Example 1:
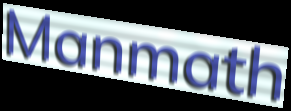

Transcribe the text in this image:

Manmath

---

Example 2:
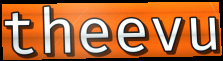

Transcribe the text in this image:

theevu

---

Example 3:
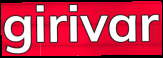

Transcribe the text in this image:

girivar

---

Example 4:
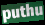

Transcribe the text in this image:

puthu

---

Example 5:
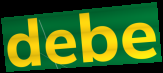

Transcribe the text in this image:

debe